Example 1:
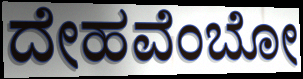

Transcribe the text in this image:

ದೇಹವೆಂಬೋ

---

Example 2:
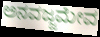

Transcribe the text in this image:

ಅನವಜ್ಜಮೇವ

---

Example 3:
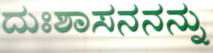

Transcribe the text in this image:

ದುಃಶಾಸನನನ್ನು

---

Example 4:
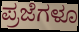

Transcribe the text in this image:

ಪ್ರಜೆಗಳೂ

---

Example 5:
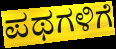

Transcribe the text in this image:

ಪಥಗಳಿಗೆ